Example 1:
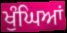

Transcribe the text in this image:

ਖੁੰਘਿਆਂ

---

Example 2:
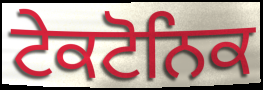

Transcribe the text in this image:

ਟੇਕਟੋਨਿਕ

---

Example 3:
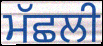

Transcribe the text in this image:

ਮੱਛਲੀ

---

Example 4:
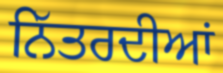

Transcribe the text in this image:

ਨਿੱਤਰਦੀਆਂ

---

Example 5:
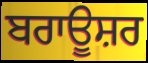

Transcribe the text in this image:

ਬਰਾਊਸ਼ਰ